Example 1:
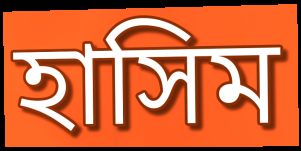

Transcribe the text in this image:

হাসিম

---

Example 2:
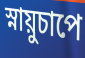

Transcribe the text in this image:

স্নায়ুচাপে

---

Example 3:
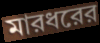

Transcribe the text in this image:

মারধরের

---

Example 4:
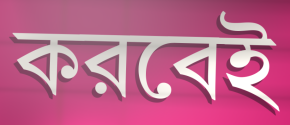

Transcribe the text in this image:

করবেই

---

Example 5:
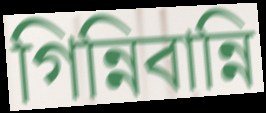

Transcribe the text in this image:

গিন্নিবান্নি